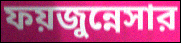
ফয়জুন্নেসার